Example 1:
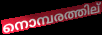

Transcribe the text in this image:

നൊമ്പരത്തില്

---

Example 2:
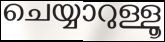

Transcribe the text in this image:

ചെയ്യാറുള്ളൂ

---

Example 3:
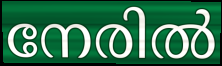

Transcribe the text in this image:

നേരിൽ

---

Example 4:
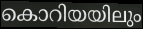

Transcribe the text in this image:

കൊറിയയിലും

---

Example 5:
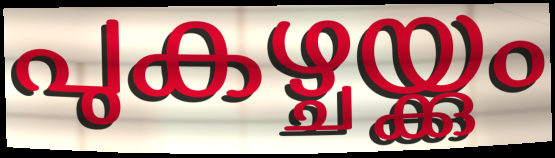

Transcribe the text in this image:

പുകഴ്ചയ്ക്കും